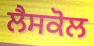
ਲੈਸਕੋਲ